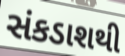
સંકડાશથી